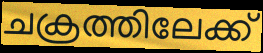
ചക്രത്തിലേക്ക്